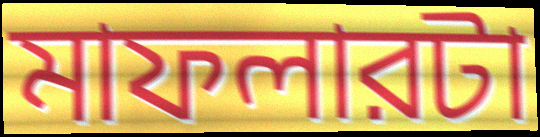
মাফলারটা